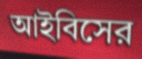
আইবিসের